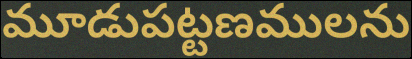
మూడుపట్టణములను